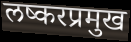
लष्करप्रमुख